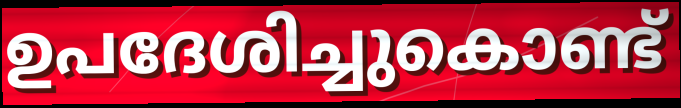
ഉപദേശിച്ചുകൊണ്ട്